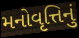
મનોવૃત્તિનું